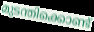
മുടന്തിക്കൊണ്ട്